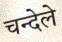
चन्देले